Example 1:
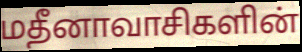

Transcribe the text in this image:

மதீனாவாசிகளின்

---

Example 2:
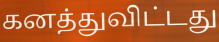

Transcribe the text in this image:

கனத்துவிட்டது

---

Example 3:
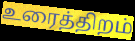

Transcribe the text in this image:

உரைத்திறம்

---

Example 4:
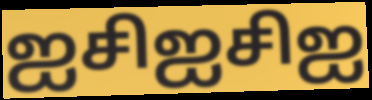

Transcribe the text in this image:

ஐசிஐசிஐ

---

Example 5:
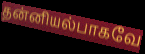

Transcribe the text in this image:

தன்னியல்பாகவே